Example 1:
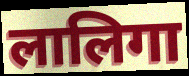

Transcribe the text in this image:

लालिगा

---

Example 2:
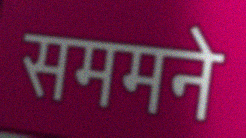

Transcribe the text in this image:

सममने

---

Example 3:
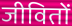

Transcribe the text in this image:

जीवितों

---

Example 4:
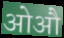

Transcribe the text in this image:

ओऔ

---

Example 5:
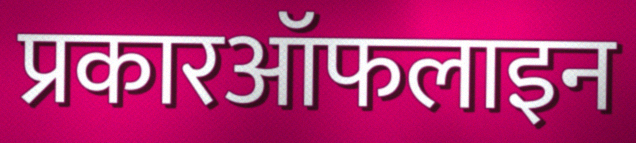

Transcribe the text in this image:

प्रकारऑफलाइन